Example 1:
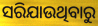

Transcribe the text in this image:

ସରିଯାଉଥିବାରୁ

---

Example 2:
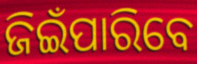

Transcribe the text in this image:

ଜିଇଁପାରିବେ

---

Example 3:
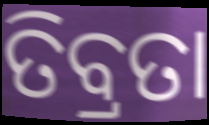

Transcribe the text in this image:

ତିବ୍ରତା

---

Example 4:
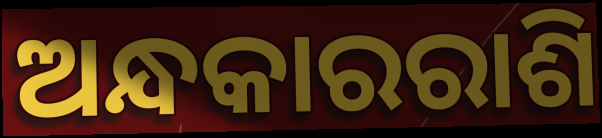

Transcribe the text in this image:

ଅନ୍ଧକାରରାଶି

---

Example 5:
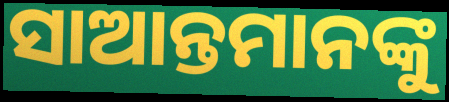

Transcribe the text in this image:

ସାଆନ୍ତମାନଙ୍କୁ